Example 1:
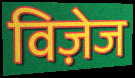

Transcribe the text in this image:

विज़ेज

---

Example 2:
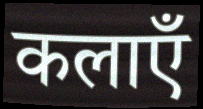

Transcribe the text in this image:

कलाएँ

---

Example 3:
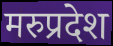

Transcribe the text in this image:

मरुप्रदेश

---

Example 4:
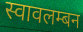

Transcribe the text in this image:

स्वावलम्बन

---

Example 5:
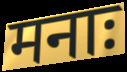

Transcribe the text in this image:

मनाः